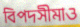
বিপদসীমাও